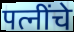
पत्नींचे